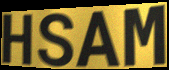
HSAM